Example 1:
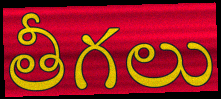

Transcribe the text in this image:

తీగలు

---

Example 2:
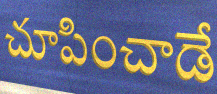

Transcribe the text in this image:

చూపించాడే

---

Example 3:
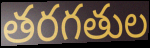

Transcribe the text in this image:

తరగతుల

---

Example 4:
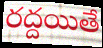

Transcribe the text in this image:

రద్దయితే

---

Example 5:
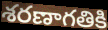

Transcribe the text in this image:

శరణాగతికి